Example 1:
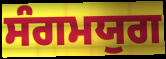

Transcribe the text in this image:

ਸੰਗਮਯੁਗ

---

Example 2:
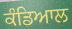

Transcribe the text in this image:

ਕੰਡਿਆਲ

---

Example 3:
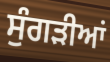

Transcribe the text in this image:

ਸੁੰਗੜੀਆਂ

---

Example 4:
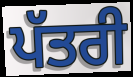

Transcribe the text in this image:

ਪੱਤਰੀ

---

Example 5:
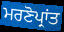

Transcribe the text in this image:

ਮਰਣੋਪ੍ਰਾਂਤ